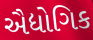
ઐદ્યોગિક